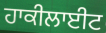
ਹਾਕੀਲਾਈਟ